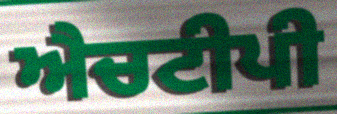
ਐਚਟੀਪੀ